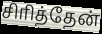
சிரித்தேன்